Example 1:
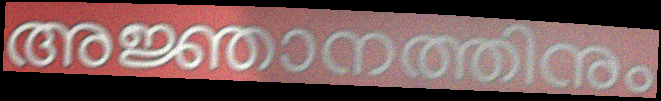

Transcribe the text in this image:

അജ്ഞാനത്തിനും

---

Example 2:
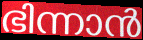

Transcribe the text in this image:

ഭിന്നാൻ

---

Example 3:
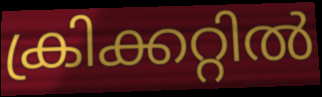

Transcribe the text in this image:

ക്രിക്കറ്റിൽ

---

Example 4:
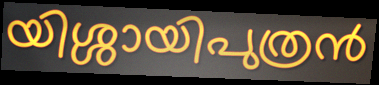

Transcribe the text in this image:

യിശ്ശായിപുത്രൻ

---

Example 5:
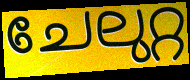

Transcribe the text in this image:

ചേലുറ്റ